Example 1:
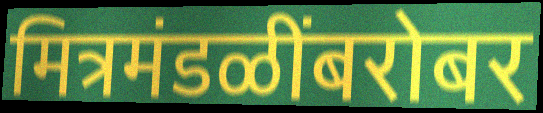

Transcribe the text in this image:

मित्रमंडळींबरोबर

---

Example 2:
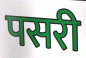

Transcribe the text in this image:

पसरी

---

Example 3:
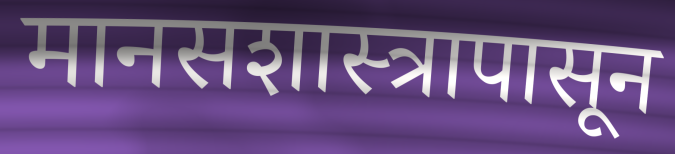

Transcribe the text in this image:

मानसशास्त्रापासून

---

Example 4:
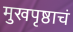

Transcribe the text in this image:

मुखपृष्ठाचं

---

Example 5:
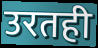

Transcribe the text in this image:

उरतही